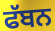
ਫੱਬਨ